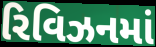
રિવિઝનમાં